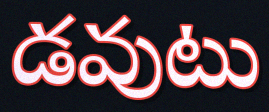
డవుటు